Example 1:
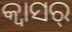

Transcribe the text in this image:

କ୍ୱାସର୍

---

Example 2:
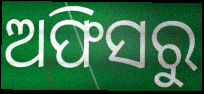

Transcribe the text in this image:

ଅଫିସରୁ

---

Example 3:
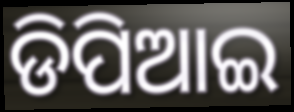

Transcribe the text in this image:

ଡିପିଆଇ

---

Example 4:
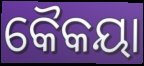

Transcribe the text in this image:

କୈକୟା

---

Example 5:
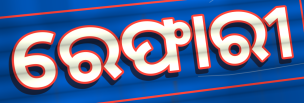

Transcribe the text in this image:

ରେଫାରୀ